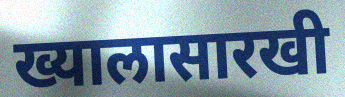
ख्यालासारखी